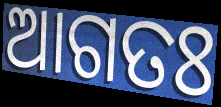
ଆଗତଃ